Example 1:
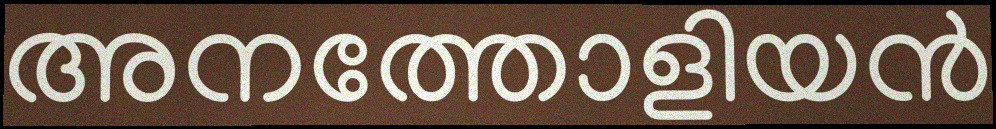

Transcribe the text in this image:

അനത്തോളിയൻ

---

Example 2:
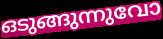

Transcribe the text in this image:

ഒടുങ്ങുന്നുവോ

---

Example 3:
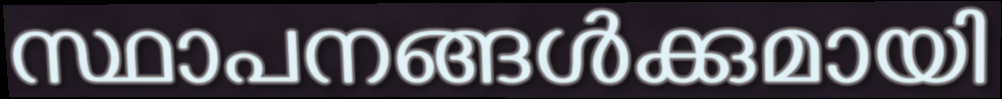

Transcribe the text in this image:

സ്ഥാപനങ്ങൾക്കുമായി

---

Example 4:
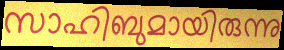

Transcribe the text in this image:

സാഹിബുമായിരുന്നു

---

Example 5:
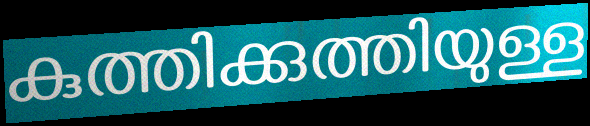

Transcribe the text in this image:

കുത്തിക്കുത്തിയുള്ള